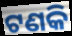
ଟଣକି